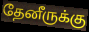
தேனீருக்கு